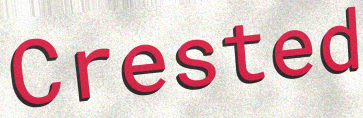
Crested